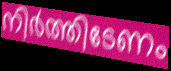
നിർത്തിടേണം